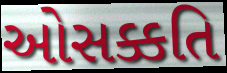
ઓસક્કતિ